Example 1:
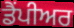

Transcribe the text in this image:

ਡੈਂਪੀਅਰ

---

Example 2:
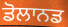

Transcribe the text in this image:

ਡੋਲਾਨਡ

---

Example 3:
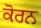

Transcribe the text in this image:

ਕੋਰਨ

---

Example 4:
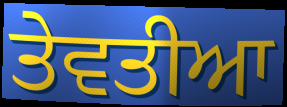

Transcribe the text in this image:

ਤੇਵਤੀਆ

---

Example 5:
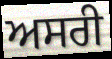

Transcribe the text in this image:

ਅਸਰੀ